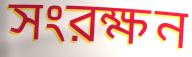
সংরক্ষন